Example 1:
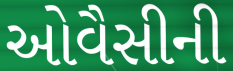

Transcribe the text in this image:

ઓવૈસીની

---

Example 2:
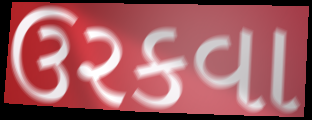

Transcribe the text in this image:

ઉરકવા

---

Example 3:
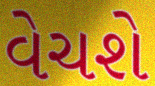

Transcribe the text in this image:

વેચશે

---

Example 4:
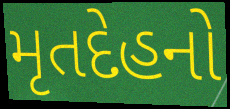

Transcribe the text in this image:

મૃતદેહનો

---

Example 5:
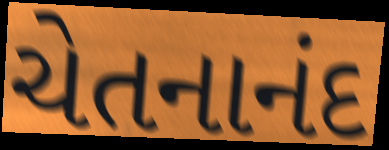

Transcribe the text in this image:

ચેતનાનંદ